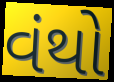
વંથો